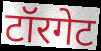
टॉरगेट